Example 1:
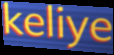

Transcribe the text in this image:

keliye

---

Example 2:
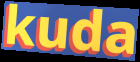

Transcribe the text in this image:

kuda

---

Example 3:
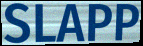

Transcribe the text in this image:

SLAPP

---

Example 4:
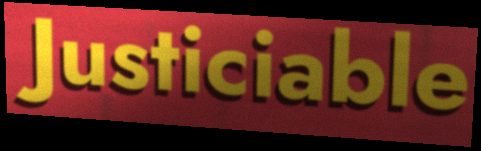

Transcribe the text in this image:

Justiciable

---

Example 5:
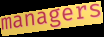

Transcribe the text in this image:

managers